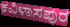
ಕವಿಳಾಸಪುರ